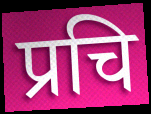
प्रचि